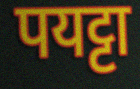
पयट्टा